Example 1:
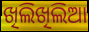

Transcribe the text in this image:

ଖିଲିଖିଲିଆ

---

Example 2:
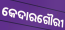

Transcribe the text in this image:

କେଦାରଗୌରୀ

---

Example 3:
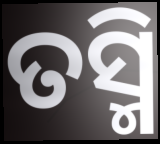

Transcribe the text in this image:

ତସ୍ମି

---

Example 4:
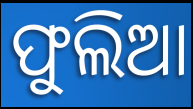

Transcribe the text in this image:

ଫୁଲିଆ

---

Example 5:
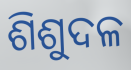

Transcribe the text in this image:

ଶିଶୁଦଳ